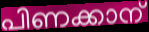
പിണക്കാന്